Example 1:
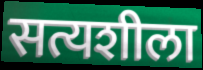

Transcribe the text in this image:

सत्यशीला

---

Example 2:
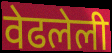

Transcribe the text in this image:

वेढलेली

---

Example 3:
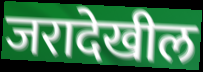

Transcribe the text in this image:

जरादेखील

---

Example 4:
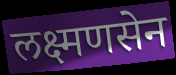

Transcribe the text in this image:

लक्ष्मणसेन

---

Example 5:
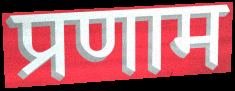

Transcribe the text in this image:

प्रणाम